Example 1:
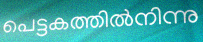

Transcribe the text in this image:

പെട്ടകത്തിൽനിന്നു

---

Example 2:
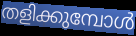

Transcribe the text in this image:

തളിക്കുമ്പോൾ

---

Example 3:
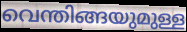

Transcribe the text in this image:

വെന്തിങ്ങയുമുള്ള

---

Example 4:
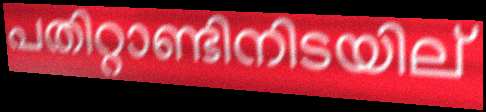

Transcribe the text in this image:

പതിറ്റാണ്ടിനിടയില്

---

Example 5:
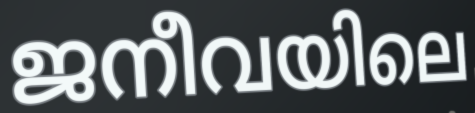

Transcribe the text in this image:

ജനീവയിലെ